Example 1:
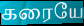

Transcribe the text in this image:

கரையே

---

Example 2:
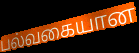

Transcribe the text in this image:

பல்வகையான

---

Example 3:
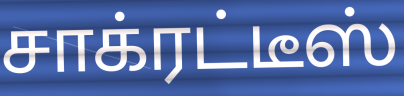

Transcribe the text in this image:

சாக்ரட்டீஸ்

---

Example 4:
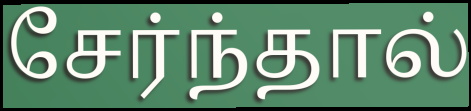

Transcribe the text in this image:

சேர்ந்தால்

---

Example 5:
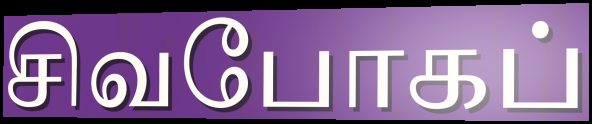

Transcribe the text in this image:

சிவபோகப்